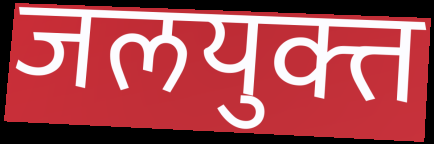
जलयुक्त